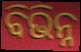
ବିଭିନ୍ନ